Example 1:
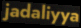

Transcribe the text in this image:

jadaliyya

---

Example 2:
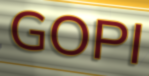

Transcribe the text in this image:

GOPI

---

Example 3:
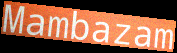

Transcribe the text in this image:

Mambazam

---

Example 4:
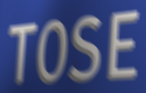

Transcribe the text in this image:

TOSE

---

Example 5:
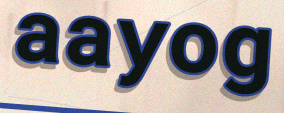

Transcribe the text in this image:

aayog